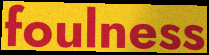
foulness